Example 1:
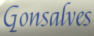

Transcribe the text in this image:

Gonsalves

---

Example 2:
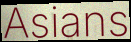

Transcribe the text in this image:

Asians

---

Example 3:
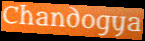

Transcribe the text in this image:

Chandogya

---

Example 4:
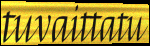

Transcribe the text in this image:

tuvaittatu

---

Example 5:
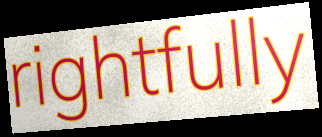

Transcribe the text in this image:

rightfully